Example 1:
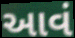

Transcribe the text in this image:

આવં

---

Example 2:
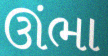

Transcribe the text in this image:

ઊંભા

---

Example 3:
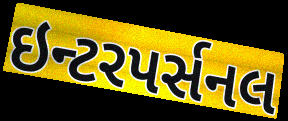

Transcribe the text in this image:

ઇન્ટરપર્સનલ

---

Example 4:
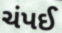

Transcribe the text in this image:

ચંપઈ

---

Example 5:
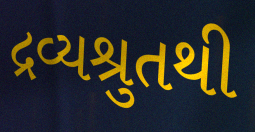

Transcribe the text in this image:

દ્રવ્યશ્રુતથી